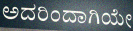
ಅದರಿಂದಾಗಿಯೇ